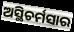
ଅସ୍ଥିଚର୍ମସାର